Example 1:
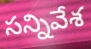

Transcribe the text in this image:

సన్నివేశ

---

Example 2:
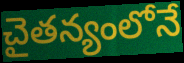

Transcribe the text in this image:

చైతన్యంలోనే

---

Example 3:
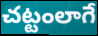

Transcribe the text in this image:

చట్టంలాగే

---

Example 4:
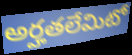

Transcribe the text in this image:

అర్హతలేమిటో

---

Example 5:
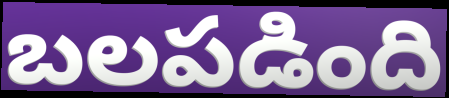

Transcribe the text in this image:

బలపడింది